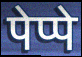
पेप्पे